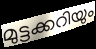
മുട്ടക്കറിയും